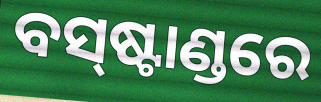
ବସ୍‍ଷ୍ଟାଣ୍ଡରେ